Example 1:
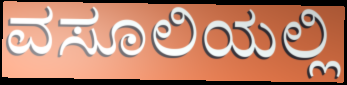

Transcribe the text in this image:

ವಸೂಲಿಯಲ್ಲಿ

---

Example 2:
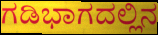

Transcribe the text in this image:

ಗಡಿಭಾಗದಲ್ಲಿನ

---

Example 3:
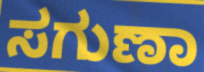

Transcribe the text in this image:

ಸಗುಣಾ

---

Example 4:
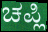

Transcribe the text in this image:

ಚಪ್ಲಿ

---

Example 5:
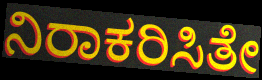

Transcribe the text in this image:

ನಿರಾಕರಿಸಿತೇ